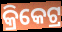
କ୍ରିକେଟ୍ର